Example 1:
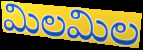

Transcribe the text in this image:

మిలమిల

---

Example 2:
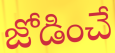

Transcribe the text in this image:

జోడించే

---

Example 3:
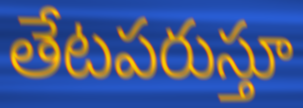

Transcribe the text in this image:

తేటపరుస్తూ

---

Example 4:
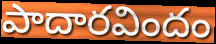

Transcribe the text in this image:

పాదారవిందం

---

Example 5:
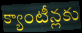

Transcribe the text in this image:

క్యాంటీన్లకు